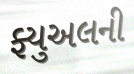
ફ્યુઅલની